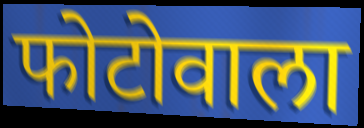
फोटोवाला